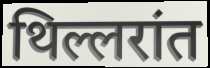
थिल्लरांत